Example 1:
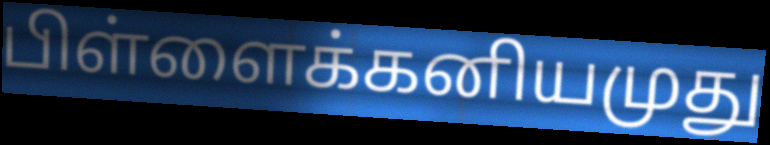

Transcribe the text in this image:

பிள்ளைக்கனியமுது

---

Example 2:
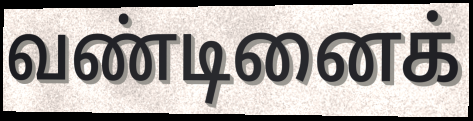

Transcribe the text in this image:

வண்டினைக்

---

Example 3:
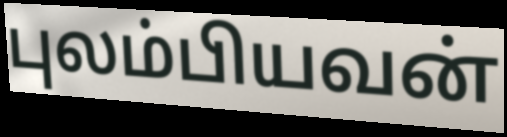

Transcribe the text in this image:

புலம்பியவன்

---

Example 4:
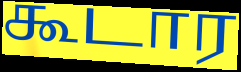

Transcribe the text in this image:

கூடார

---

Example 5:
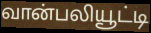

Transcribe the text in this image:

வான்பலியூட்டி